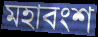
মহাবংশ